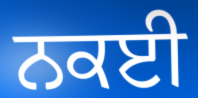
ਨਕਈ